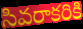
సివరాకరికి